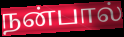
நன்பால்